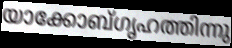
യാക്കോബ്ഗൃഹത്തിന്നു